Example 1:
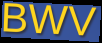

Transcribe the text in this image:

BWV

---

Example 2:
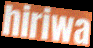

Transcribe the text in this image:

hiriwa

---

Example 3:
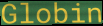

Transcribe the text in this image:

Globin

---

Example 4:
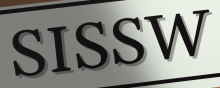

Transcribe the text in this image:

SISSW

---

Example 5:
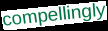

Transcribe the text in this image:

compellingly